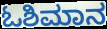
ಓಶಿಮಾನ